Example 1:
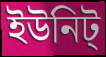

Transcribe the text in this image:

ইউনিট্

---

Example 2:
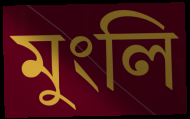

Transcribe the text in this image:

মুংলি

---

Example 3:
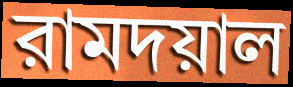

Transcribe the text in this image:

রামদয়াল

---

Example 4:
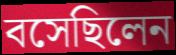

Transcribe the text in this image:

বসেছিলেন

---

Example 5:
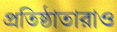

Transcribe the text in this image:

প্রতিষ্ঠাতারাও